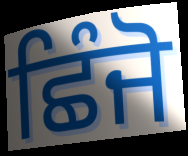
ਛਿੰਜੋ